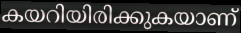
കയറിയിരിക്കുകയാണ്